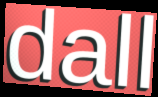
dall